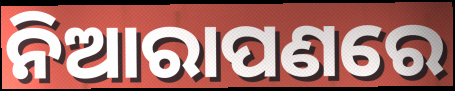
ନିଆରାପଣରେ